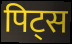
पिट्स